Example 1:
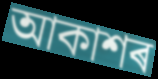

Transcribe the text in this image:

আকাশৰ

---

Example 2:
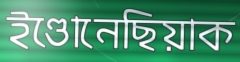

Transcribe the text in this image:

ইণ্ডোনেছিয়াক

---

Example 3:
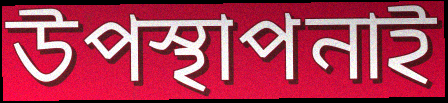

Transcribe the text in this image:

উপস্থাপনাই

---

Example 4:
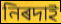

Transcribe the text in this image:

নিৰদাই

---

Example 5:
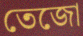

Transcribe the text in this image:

তেজো